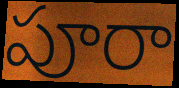
పూరా